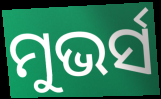
ମୁଭର୍ସ